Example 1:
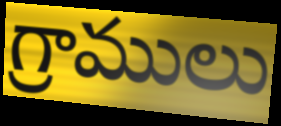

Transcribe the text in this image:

గ్రాములు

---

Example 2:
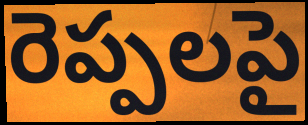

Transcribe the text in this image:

రెప్పలపై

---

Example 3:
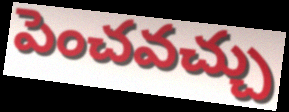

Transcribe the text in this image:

పెంచవచ్చు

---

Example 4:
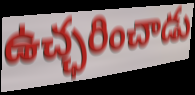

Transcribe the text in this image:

ఉచ్ఛరించాడు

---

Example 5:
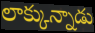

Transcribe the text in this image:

లాక్కున్నాడు